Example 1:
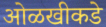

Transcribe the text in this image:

ओळखीकडे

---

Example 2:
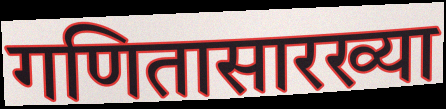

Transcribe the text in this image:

गणितासारख्या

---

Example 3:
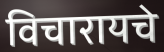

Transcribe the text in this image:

विचारायचे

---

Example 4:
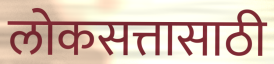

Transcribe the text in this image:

लोकसत्तासाठी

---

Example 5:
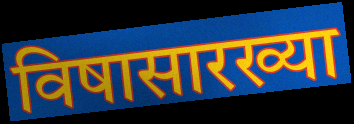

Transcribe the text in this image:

विषासारख्या